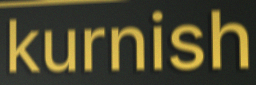
kurnish